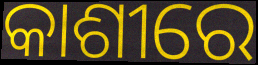
କାଶୀରେ